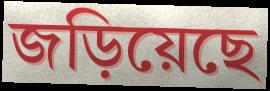
জড়িয়েছে